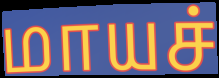
மாயச்